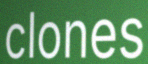
clones